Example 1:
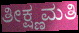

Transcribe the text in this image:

ತೀಕ್ಷ್ಣಮತಿ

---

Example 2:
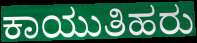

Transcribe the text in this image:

ಕಾಯುತಿಹರು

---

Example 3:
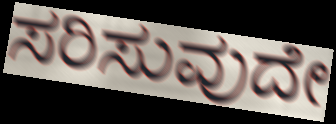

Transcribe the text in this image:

ಸರಿಸುವುದೇ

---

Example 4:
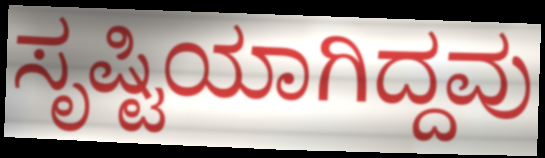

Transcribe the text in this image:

ಸೃಷ್ಟಿಯಾಗಿದ್ದವು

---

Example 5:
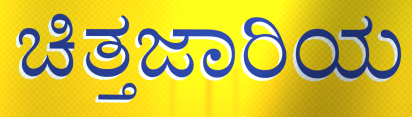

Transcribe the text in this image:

ಚಿತ್ತಜಾರಿಯ